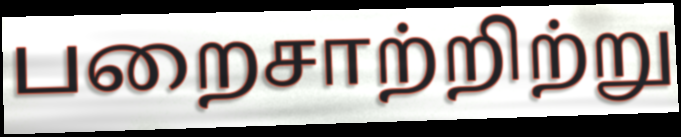
பறைசாற்றிற்று